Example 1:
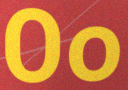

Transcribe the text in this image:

Oo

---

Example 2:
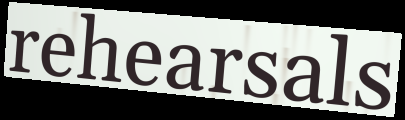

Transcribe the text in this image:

rehearsals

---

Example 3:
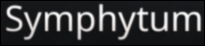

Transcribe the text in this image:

Symphytum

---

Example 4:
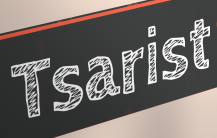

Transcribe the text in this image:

Tsarist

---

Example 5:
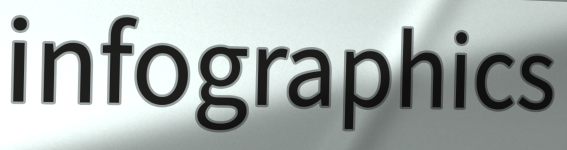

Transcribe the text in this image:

infographics